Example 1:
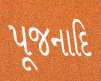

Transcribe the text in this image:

પૂજનાદિ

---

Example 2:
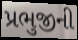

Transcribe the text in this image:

પ્રભુજીની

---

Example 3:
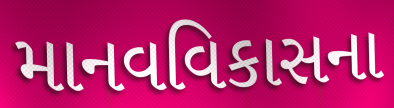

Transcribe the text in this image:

માનવવિકાસના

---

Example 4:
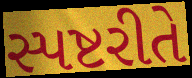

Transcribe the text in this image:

સ્પષ્ટરીતે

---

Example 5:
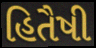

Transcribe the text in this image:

હિતૈષી